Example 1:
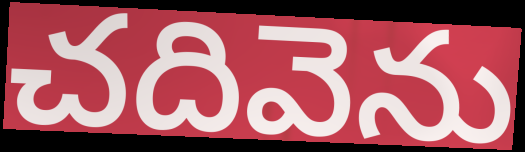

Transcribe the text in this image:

చదివెను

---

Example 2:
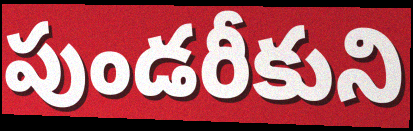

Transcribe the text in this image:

పుండరీకుని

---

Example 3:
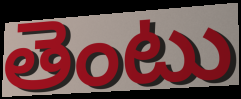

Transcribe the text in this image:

తెంటు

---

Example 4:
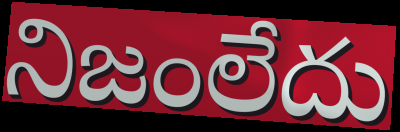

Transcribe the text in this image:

నిజంలేదు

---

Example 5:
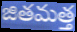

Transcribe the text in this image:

జితమత్త